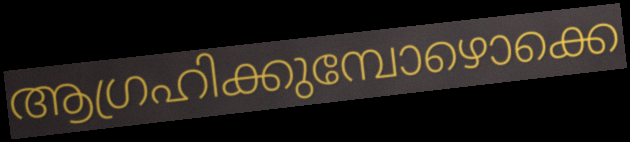
ആഗ്രഹിക്കുമ്പോഴൊക്കെ